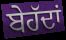
ਬੇਹੱਦਾਂ